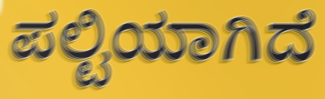
ಪಲ್ಟಿಯಾಗಿದೆ